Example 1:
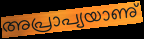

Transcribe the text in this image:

അപ്രാപ്യയാണു്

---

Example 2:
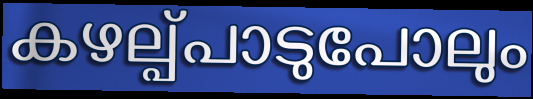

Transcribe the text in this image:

കഴല്പ്പാടുപോലും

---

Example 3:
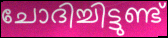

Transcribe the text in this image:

ചോദിച്ചിട്ടുണ്ട്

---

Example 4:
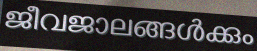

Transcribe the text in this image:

ജീവജാലങ്ങൾക്കും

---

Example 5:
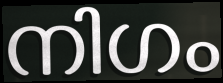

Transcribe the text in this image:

നിഗം